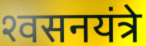
श्वसनयंत्रे